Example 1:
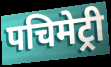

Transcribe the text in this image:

पचिमेट्री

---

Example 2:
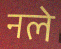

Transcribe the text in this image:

नले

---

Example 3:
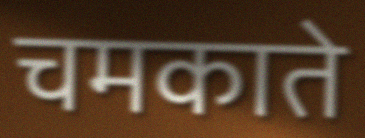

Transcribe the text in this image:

चमकाते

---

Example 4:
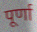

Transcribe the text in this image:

पूर्णा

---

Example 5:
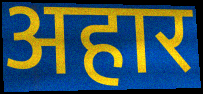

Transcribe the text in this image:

अहार